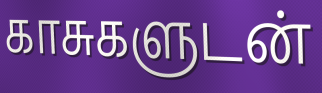
காசுகளுடன்